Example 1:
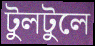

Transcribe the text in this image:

টুলটুলে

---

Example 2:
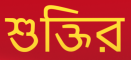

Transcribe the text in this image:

শুক্তির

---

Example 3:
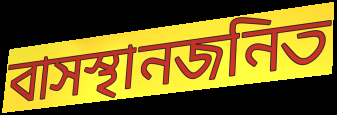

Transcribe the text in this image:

বাসস্থানজনিত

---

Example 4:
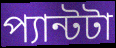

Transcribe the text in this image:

প্যান্টটা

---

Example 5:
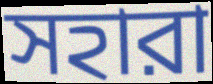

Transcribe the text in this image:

সহারা